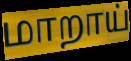
மாறாய்